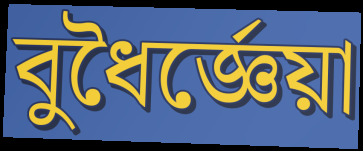
বুধৈর্জ্ঞেয়া